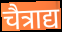
चैत्राद्य